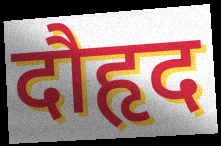
दौहृद